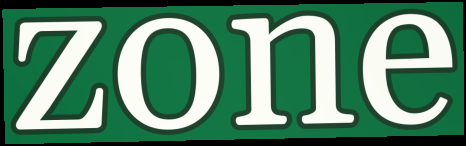
zone